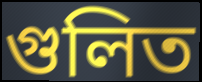
গুলিত